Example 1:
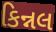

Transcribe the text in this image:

કિન્નલ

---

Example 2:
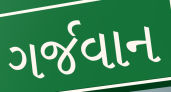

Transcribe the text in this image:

ગર્જવાન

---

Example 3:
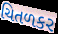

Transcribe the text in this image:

ચિતળકર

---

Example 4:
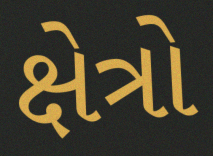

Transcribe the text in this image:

ક્ષેત્રો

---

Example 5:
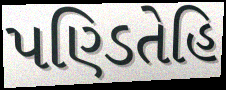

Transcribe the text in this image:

પણ્ડિતેહિ